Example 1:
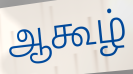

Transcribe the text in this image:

ஆகூழ்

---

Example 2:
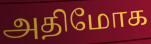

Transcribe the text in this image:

அதிமோக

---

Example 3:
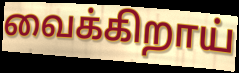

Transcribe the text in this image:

வைக்கிறாய்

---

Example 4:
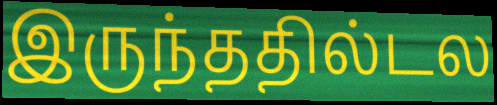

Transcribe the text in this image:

இருந்ததில்டல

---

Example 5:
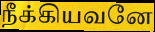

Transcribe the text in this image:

நீக்கியவனே